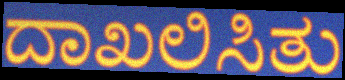
ದಾಖಲಿಸಿತು